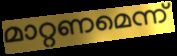
മാറ്റണമെന്ന്